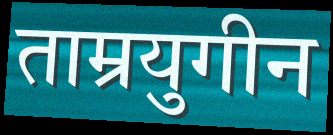
ताम्रयुगीन